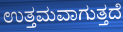
ಉತ್ತಮವಾಗುತ್ತದೆ